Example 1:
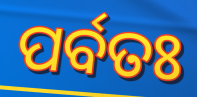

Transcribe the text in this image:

ପର୍ବତଃ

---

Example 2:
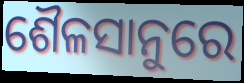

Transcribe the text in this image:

ଶୈଳସାନୁରେ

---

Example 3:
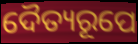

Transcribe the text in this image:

ଦୈତ୍ୟରୂପେ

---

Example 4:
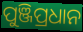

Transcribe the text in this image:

ପୁଞ୍ଜିପ୍ରଧାନ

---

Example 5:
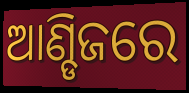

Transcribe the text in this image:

ଆଣ୍ଡିଜରେ